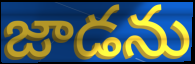
జాడను